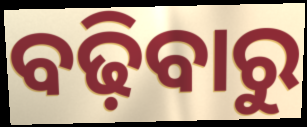
ବଢ଼ିବାରୁ